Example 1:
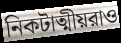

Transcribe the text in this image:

নিকটাত্মীয়রাও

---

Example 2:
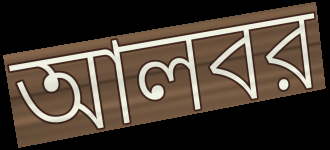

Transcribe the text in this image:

আলবর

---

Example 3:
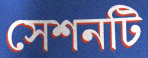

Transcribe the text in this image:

সেশনটি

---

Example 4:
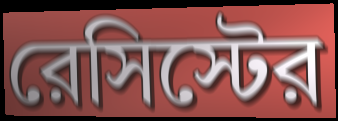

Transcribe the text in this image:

রেসিস্টের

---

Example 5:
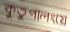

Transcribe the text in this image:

কুতুপালংয়ে